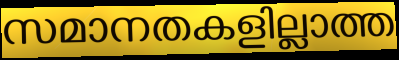
സമാനതകളില്ലാത്ത